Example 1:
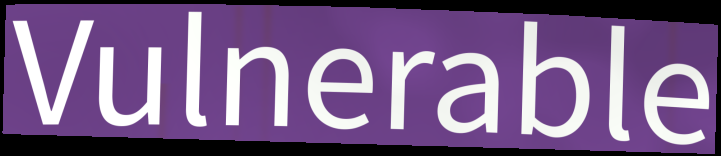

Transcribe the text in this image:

Vulnerable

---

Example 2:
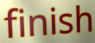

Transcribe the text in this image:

finish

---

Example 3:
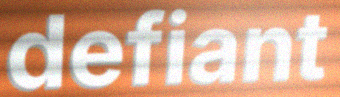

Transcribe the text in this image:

defiant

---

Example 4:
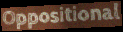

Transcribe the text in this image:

Oppositional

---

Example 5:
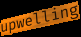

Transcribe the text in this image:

upwelling